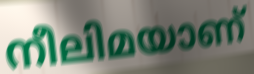
നീലിമയാണ്